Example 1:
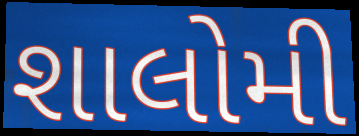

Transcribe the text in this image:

શાલોમી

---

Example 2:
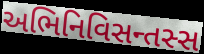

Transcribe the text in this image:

અભિનિવિસન્તસ્સ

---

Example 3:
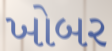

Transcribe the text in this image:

ખોબર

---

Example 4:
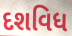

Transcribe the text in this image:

દશવિધ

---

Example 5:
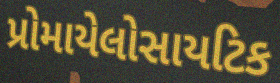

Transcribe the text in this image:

પ્રોમાયેલોસાયટિક